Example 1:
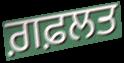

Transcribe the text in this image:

ਗ਼ਫ਼ਲਤ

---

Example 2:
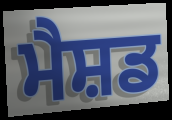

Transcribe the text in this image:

ਮੈਸ਼ਡ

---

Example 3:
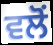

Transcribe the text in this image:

ਵਲੋਂ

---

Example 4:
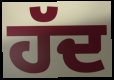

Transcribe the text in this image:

ਹੱਦ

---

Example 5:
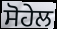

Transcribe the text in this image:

ਸੋਹੇਲ